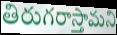
తిరుగరాస్తామని